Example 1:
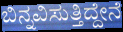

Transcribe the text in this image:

ಬಿನ್ನವಿಸುತ್ತಿದ್ದೇನೆ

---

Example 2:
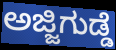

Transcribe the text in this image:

ಅಜ್ಜಿಗುಡ್ಡೆ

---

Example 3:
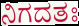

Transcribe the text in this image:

ನಿಗದತಃ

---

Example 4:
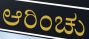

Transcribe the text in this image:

ಆರಿಂಚು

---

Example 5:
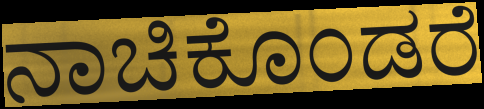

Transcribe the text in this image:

ನಾಚಿಕೊಂಡರೆ